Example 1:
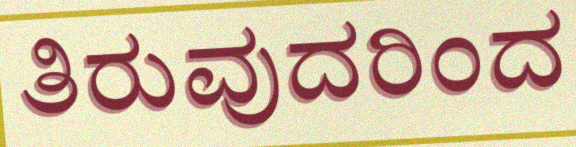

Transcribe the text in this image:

ತಿರುವುದರಿಂದ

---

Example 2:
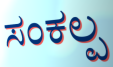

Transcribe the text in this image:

ಸಂಕಲ್ಪ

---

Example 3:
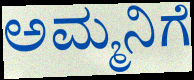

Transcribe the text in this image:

ಅಮ್ಮನಿಗೆ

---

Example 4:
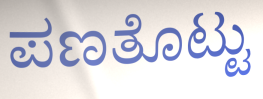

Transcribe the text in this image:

ಪಣತೊಟ್ಟು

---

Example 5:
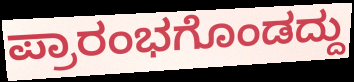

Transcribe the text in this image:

ಪ್ರಾರಂಭಗೊಂಡದ್ದು